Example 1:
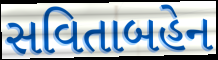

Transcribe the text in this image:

સવિતાબહેન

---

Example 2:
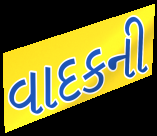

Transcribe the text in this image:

વાદકની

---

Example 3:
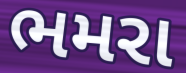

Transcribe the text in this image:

ભમરા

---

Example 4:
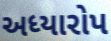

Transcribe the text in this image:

અધ્યારોપ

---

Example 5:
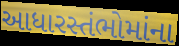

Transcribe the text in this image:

આધારસ્તંભોમાંના